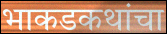
भाकडकथांचा